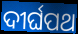
ଦୀର୍ଘପଥ